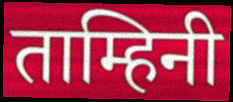
ताम्हिनी